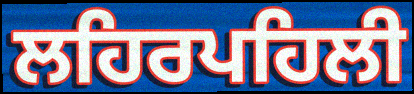
ਲਹਿਰਪਹਿਲੀ